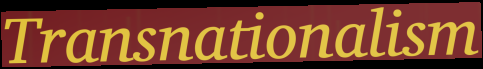
Transnationalism